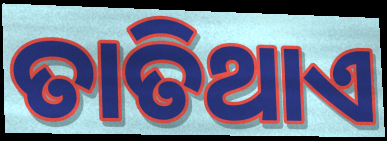
ତାତିଥାଏ